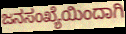
ಜನಸಂಖ್ಯೆಯಿಂದಾಗಿ